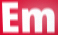
Em